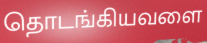
தொடங்கியவளை